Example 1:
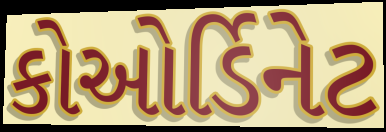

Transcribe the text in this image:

કોઓર્ડિનેટ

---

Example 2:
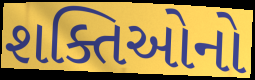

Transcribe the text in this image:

શક્તિઓનો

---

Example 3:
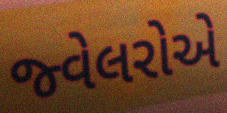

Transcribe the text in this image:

જ્વેલરોએ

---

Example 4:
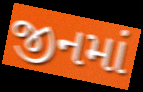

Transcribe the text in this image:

જીનમાં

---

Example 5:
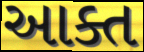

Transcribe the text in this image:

આક્ત